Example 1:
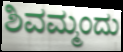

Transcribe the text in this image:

ಶಿವಮ್ಮಂದು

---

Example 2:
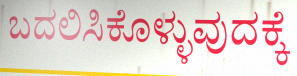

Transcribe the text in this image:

ಬದಲಿಸಿಕೊಳ್ಳುವುದಕ್ಕೆ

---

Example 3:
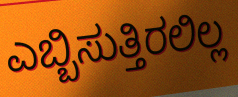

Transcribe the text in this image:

ಎಬ್ಬಿಸುತ್ತಿರಲಿಲ್ಲ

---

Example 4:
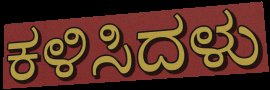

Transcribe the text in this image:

ಕಳಿಸಿದಳು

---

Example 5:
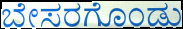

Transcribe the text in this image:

ಬೇಸರಗೊಂಡು